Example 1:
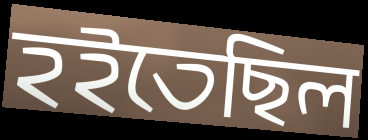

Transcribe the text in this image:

হইতেছিল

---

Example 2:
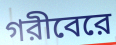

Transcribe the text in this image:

গরীবেরে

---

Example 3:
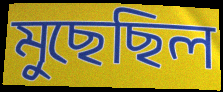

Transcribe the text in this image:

মুছেছিল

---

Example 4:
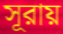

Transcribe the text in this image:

সূরায়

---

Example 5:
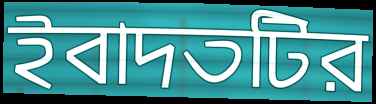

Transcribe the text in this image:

ইবাদতটির